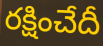
రక్షించేదీ